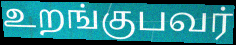
உறங்குபவர்